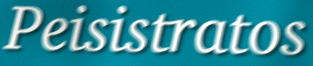
Peisistratos